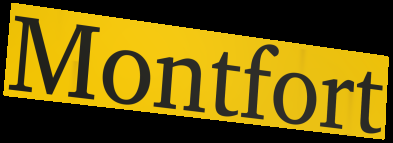
Montfort